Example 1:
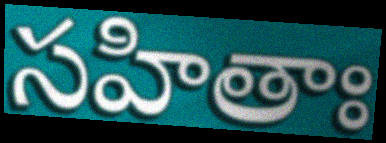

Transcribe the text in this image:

సహితాః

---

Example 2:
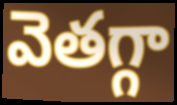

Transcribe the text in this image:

వెతగ్గా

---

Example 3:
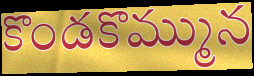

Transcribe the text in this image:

కొండకొమ్మున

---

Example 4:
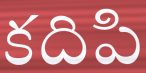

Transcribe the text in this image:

కదిపి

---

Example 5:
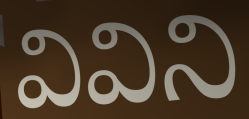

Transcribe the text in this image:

వివిని